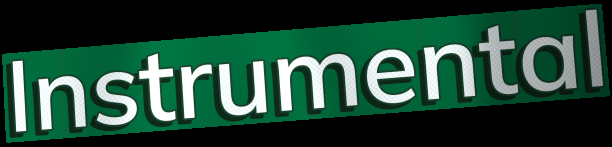
Instrumental